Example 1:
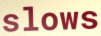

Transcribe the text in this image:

slows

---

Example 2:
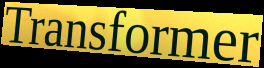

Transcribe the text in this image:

Transformer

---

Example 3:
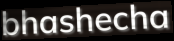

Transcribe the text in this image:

bhashecha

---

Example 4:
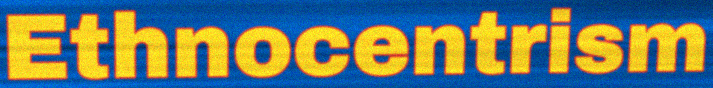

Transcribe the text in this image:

Ethnocentrism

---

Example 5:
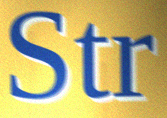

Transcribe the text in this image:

Str